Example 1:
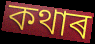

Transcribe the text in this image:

কথাৰ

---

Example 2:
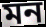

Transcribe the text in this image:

মন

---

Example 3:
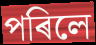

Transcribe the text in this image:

পৰিলে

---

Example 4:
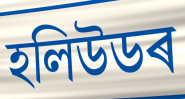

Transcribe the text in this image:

হলিউডৰ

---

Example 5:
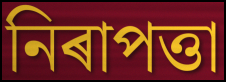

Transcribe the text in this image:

নিৰাপত্তা